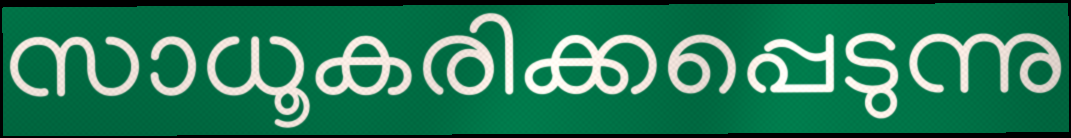
സാധൂകരിക്കപ്പെടുന്നു